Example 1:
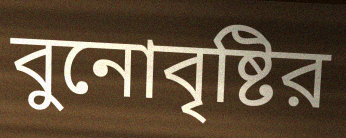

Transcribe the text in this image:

বুনোবৃষ্টির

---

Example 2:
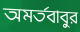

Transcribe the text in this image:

অমর্তবাবুর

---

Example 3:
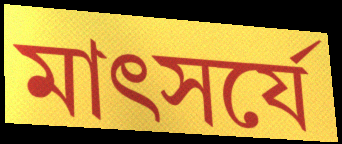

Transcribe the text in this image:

মাৎসর্যে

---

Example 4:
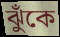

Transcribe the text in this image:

ঝুঁকে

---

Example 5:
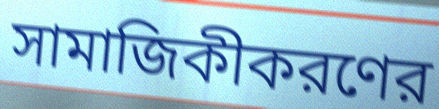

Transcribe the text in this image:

সামাজিকীকরণের